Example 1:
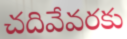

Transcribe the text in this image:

చదివేవరకు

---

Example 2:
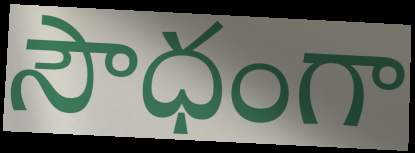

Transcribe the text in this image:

సౌధంగా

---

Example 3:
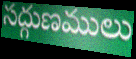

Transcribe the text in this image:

సద్గుణములు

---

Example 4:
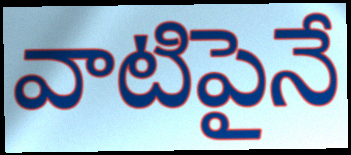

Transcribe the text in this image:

వాటిపైనే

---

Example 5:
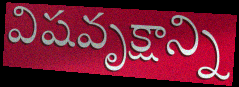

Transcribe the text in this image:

విషవృక్షాన్ని